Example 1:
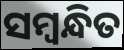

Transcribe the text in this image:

ସମ୍ବନ୍ଧିତ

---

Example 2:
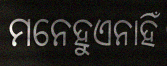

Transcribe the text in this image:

ମନେହୁଏନାହିଁ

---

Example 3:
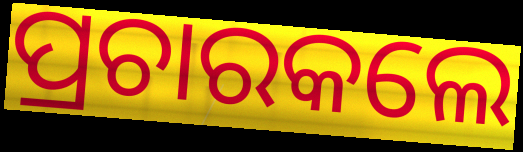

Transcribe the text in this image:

ପ୍ରଚାରକଲେ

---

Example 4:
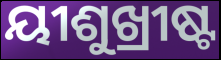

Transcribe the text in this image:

ୟୀଶୁଖ୍ରୀଷ୍ଟ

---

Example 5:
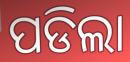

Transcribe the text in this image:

ପଡିଲା